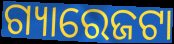
ଗ୍ୟାରେଜଟା